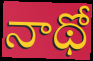
నాథో